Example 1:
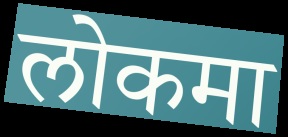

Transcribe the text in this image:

लोकमा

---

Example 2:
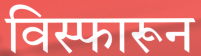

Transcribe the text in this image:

विस्फारून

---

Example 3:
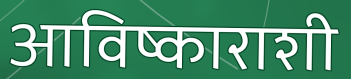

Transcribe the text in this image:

आविष्काराशी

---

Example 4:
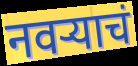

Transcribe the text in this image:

नवर्‍याचं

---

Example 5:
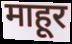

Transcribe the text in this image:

माहूर